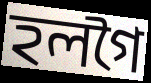
হলগৈ